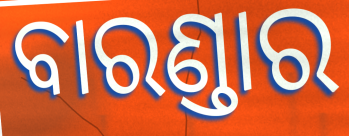
ବାରଣ୍ଡାର